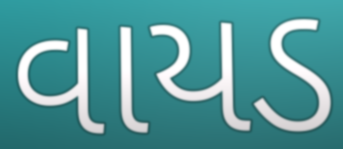
વાયડ